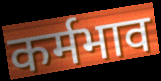
कर्मभाव